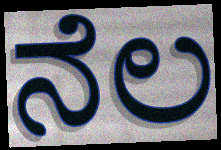
ನೆಲ